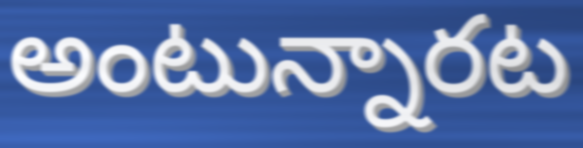
అంటున్నారట